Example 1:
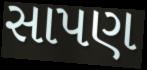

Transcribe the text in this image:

સાપણ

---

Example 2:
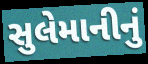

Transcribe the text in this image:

સુલેમાનીનું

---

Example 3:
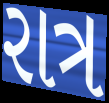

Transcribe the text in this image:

રાત્ર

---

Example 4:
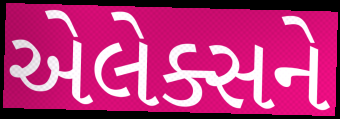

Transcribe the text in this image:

એલેક્સને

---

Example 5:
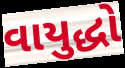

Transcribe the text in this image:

વાયુદ્ધો